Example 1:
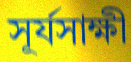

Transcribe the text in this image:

সূর্যসাক্ষী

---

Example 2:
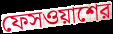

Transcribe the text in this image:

ফেসওয়াশের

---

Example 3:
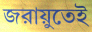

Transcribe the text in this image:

জরায়ুতেই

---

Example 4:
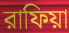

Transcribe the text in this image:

রাফিয়া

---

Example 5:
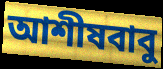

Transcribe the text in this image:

আশীষবাবু